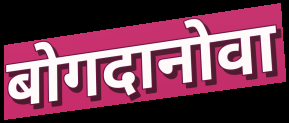
बोगदानोवा